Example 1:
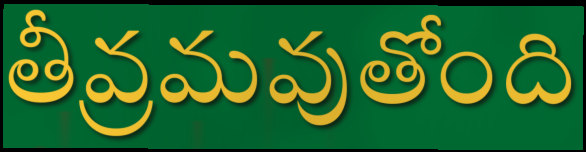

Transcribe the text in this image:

తీవ్రమవుతోంది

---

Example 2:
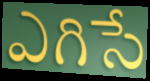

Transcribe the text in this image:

ఎగిసే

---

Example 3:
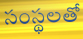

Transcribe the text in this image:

సంస్థలతో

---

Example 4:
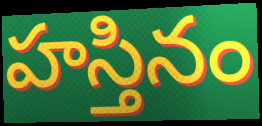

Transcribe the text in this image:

హస్తినం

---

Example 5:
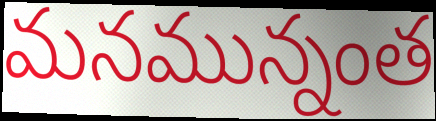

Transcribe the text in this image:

మనమున్నంత